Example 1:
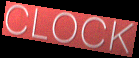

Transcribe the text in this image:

CLOCK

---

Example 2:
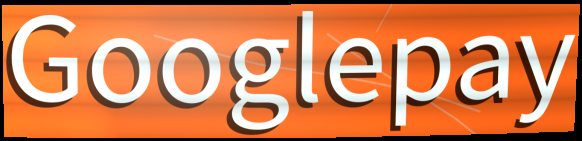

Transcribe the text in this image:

Googlepay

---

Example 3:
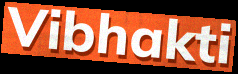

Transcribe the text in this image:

Vibhakti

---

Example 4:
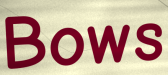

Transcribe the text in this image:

Bows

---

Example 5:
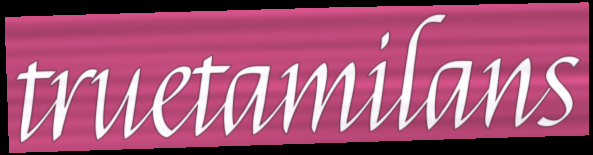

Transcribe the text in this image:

truetamilans